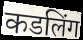
कडलिंग